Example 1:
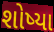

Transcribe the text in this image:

શોષ્યા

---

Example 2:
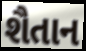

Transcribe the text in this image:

શૈતાન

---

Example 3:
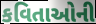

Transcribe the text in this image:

કવિતાઓની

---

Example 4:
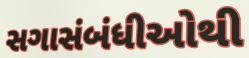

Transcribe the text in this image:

સગાસંબંધીઓથી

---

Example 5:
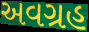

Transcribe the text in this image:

અવગ્રહ